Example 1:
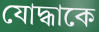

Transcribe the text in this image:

যোদ্ধাকে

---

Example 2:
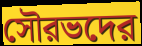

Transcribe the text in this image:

সৌরভদের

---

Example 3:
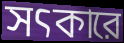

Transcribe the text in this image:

সৎকারে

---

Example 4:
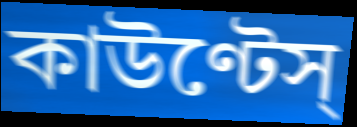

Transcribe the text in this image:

কাউণ্টেস্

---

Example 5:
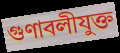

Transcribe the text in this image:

গুণাবলীযুক্ত